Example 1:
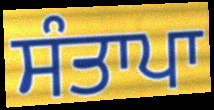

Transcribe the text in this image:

ਸੰਤਾਪਾ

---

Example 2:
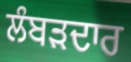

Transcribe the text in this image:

ਲੰਬੜਦਾਰ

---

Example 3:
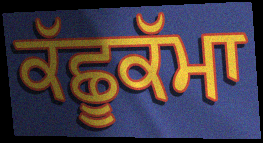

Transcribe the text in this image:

ਕੱਛੂਕੱਮਾ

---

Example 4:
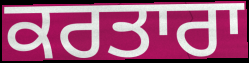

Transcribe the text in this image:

ਕਰਤਾਰਾ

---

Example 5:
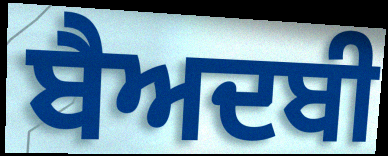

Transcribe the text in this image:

ਬੈਅਦਬੀ